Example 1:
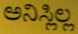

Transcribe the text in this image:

ಅನಿಸ್ಲಿಲ್ಲ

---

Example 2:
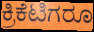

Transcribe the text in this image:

ಕ್ರಿಕೆಟಿಗರೂ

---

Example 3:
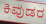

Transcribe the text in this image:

ಕಿವುಡರ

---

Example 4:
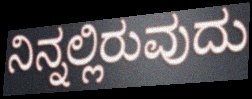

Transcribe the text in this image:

ನಿನ್ನಲ್ಲಿರುವುದು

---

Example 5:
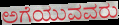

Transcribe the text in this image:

ಅಗೆಯುವವರು